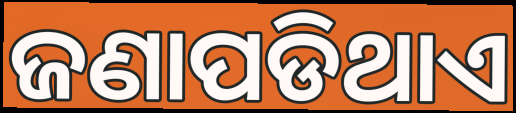
ଜଣାପଡିଥାଏ